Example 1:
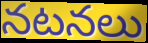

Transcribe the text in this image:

నటనలు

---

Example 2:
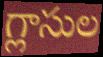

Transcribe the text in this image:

గ్లాసుల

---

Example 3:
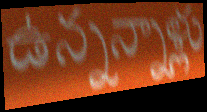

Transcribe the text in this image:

ఉన్నన్నాళ్లు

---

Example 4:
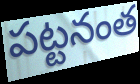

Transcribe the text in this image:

పట్టనంత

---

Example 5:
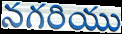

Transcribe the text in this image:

నగరియు